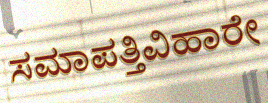
ಸಮಾಪತ್ತಿವಿಹಾರೇ